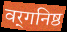
वर्गनिष्ठ